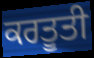
ਕਰਤੂਤੀ